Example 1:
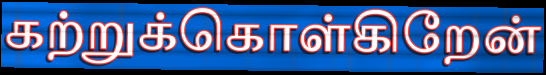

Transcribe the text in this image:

கற்றுக்கொள்கிறேன்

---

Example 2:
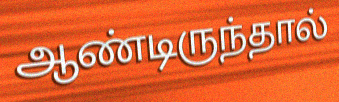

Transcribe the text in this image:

ஆண்டிருந்தால்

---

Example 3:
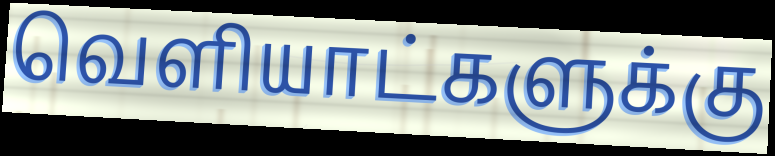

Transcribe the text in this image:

வெளியாட்களுக்கு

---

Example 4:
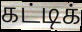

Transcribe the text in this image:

கட்டிக்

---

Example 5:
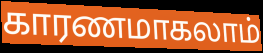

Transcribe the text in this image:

காரணமாகலாம்